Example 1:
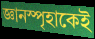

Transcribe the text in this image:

জ্ঞানস্পৃহাকেই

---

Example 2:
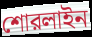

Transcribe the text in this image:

শোরলাইন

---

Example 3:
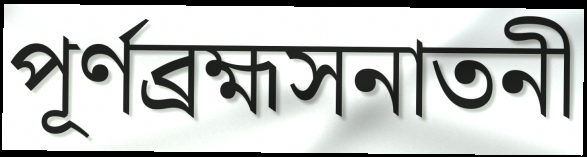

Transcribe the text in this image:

পূর্ণব্রহ্মসনাতনী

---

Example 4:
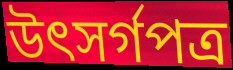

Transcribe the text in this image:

উৎসর্গপত্র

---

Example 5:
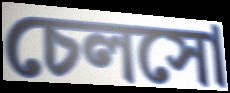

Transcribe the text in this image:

চেলসো